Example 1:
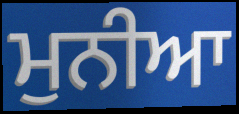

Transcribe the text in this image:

ਮੁਨੀਆ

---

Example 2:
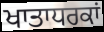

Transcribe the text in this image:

ਖਾਤਾਧਰਕਾਂ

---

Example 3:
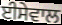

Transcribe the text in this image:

ਈਸੇਵਾਲ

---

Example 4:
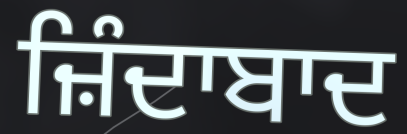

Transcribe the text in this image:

ਜ਼ਿੰਦਾਬਾਦ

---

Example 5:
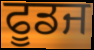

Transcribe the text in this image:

ਫੂਡਜ